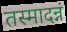
तस्मादन्नं